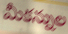
మీకన్నుల